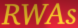
RWAs